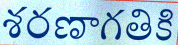
శరణాగతికి